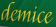
demice